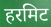
हरमिट